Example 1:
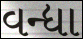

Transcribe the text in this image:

વન્દ્યા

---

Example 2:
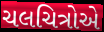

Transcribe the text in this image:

ચલચિત્રોએ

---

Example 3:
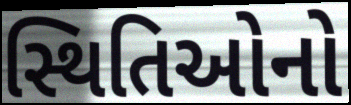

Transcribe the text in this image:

સ્થિતિઓનો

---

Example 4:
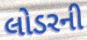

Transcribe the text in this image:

લોડરની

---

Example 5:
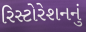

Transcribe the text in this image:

રિસ્ટોરેશનનું